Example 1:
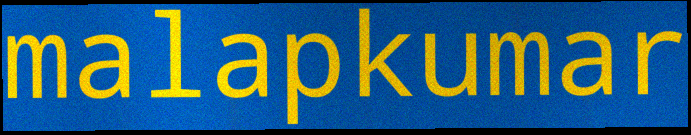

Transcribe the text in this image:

malapkumar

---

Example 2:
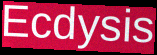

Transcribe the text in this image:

Ecdysis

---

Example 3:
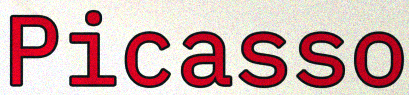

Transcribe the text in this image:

Picasso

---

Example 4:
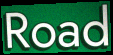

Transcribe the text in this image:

Road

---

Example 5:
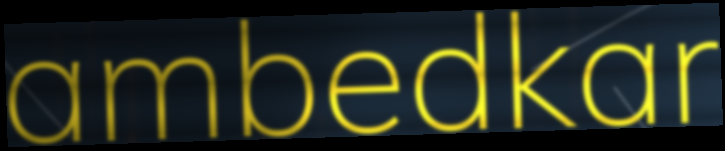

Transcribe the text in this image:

ambedkar